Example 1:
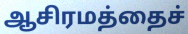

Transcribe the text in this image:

ஆசிரமத்தைச்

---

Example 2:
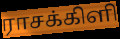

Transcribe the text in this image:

ராசக்கிளி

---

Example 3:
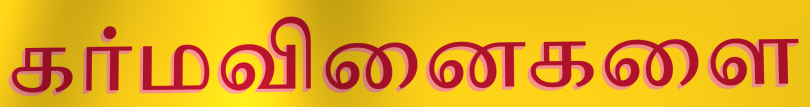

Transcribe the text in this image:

கர்மவினைகளை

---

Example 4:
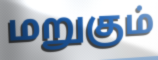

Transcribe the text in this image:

மறுகும்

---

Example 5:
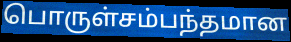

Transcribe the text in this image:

பொருள்சம்பந்தமான